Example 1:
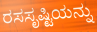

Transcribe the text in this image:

ರಸಸೃಷ್ಟಿಯನ್ನು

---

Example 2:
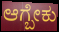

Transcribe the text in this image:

ಆಗ್ಬೇಕು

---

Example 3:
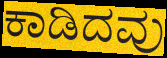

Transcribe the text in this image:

ಕಾಡಿದವು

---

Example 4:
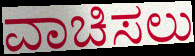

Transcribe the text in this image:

ವಾಚಿಸಲು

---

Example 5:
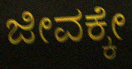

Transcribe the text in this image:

ಜೀವಕ್ಕೇ